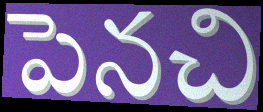
పెనచి